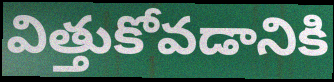
విత్తుకోవడానికి